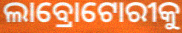
ଲାବ୍ରୋଟୋରୀକୁ